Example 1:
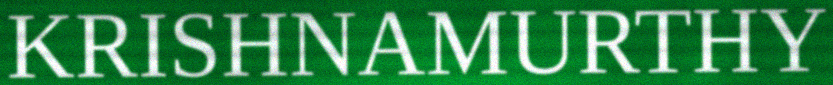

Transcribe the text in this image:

KRISHNAMURTHY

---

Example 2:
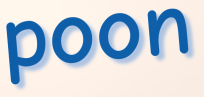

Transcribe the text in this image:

poon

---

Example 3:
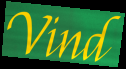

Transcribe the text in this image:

Vind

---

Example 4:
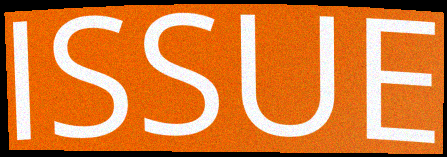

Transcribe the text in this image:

ISSUE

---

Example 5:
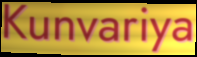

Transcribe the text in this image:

Kunvariya